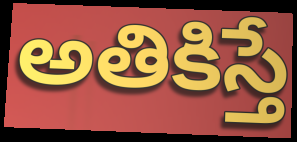
అతికిస్తే